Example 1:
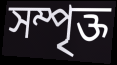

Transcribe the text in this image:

সম্পৃক্ত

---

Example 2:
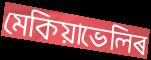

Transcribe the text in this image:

মেকিয়াভেলিৰ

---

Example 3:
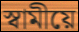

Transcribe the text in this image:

স্বামীয়ে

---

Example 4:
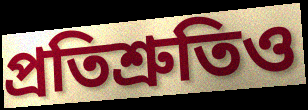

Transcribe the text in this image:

প্ৰতিশ্ৰুতিও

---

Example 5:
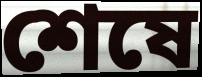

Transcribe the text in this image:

শেষে